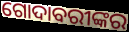
ଗୋଦାବରୀଙ୍କର